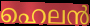
ഹെലൻ